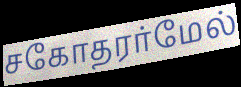
சகோதரர்மேல்